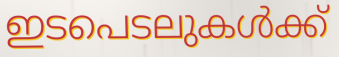
ഇടപെടലുകൾക്ക്